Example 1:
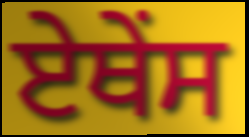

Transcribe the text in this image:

ਏਥੇੰਸ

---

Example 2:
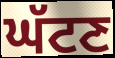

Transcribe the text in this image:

ਘੱਟਣ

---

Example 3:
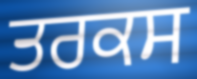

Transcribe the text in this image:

ਤਰਕਸ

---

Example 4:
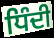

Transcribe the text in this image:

ਧਿੰਦੀ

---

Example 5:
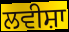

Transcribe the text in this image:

ਲਵੀਸ਼ਾ